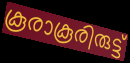
കൂരാകൂരിരുട്ട്